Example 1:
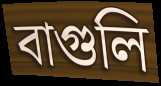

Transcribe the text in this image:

বাগুলি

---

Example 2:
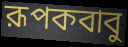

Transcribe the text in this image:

রূপকবাবু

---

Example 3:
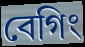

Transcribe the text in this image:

বেগিং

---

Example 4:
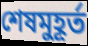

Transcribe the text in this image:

শেষমুহূর্ত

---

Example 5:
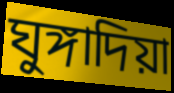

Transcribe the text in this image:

ঘুঙ্গাদিয়া